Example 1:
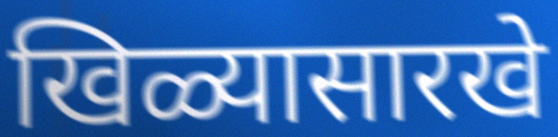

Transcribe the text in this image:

खिळ्यासारखे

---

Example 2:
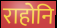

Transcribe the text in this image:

राहोनि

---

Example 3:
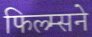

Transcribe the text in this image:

फिल्म्सने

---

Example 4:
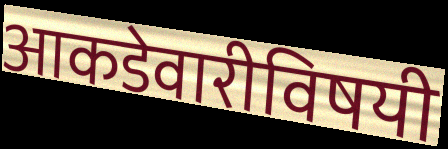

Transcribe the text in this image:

आकडेवारीविषयी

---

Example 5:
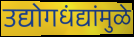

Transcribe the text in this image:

उद्योगधंद्यांमुळे